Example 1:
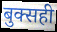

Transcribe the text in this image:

बुक्सही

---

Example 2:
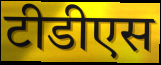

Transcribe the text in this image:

टीडीएस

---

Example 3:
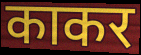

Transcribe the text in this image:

काकर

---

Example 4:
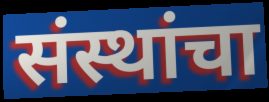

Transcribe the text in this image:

संस्थांचा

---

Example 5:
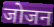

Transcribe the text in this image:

जोजन